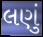
લણું